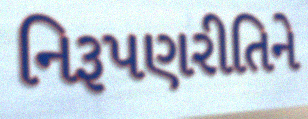
નિરૂપણરીતિને